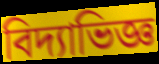
বিদ্যাভিজ্ঞ